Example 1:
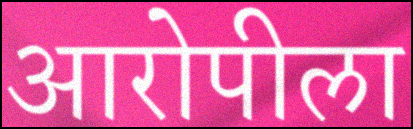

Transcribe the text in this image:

आरोपीला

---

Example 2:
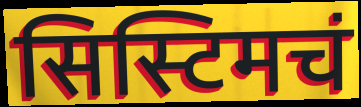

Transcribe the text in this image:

सिस्टिमचं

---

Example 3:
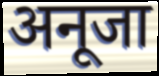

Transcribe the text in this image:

अनूजा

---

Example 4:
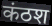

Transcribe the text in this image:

कंठश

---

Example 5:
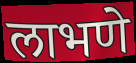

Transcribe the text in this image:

लाभणे